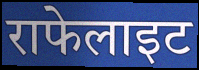
राफेलाइट